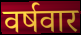
वर्षवार